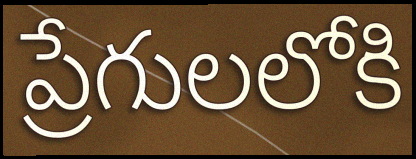
ప్రేగులలోకి